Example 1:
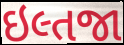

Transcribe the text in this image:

ઇલ્તજા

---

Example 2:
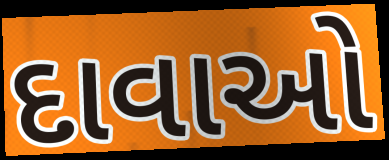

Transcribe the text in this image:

દાવાઓ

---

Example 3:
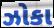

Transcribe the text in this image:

ઝોકા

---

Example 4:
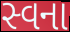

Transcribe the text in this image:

સ્વના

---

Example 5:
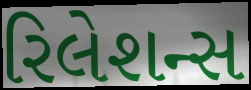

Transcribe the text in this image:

રિલેશન્સ